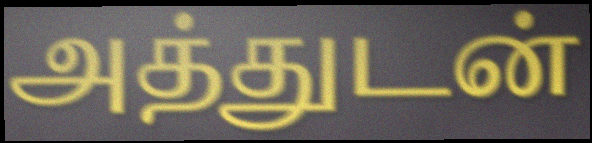
அத்துடன்